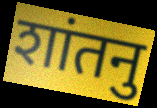
शांतनु